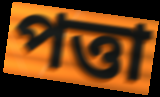
পত্তা